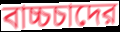
বাচ্চচাদের